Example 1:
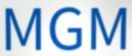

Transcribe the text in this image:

MGM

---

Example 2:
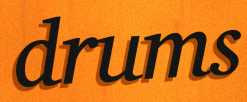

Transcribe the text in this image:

drums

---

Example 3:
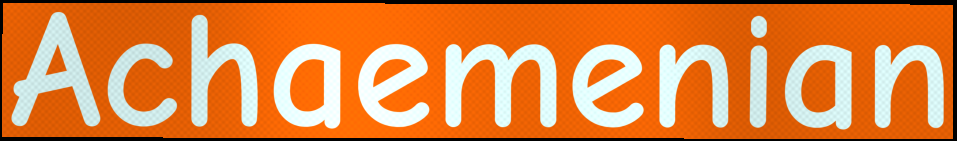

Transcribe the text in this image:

Achaemenian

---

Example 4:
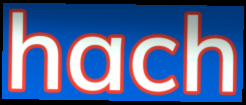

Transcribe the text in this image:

hach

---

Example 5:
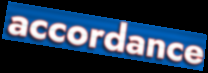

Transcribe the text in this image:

accordance